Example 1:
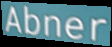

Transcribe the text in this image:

Abner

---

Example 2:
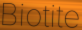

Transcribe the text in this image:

Biotite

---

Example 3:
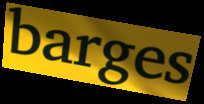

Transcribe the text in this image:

barges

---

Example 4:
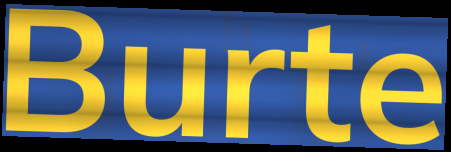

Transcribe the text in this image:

Burte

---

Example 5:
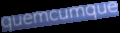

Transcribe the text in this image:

quemcumque